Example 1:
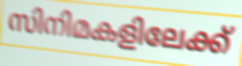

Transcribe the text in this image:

സിനിമകളിലേക്ക്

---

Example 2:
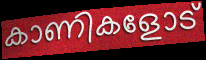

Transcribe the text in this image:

കാണികളോട്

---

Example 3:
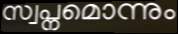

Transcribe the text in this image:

സ്വപ്നമൊന്നും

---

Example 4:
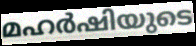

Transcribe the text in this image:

മഹർഷിയുടെ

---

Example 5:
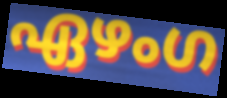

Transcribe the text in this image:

ഏഴംഗ